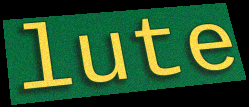
lute